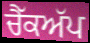
ਚੈੱਕਅੱਪ